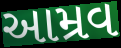
આમ્રવ